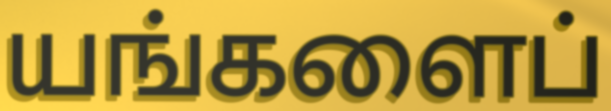
யங்களைப்